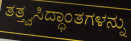
ತತ್ತ್ವಸಿದ್ಧಾಂತಗಳನ್ನು